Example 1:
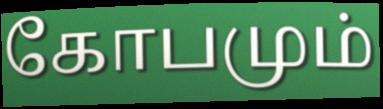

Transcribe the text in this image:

கோபமும்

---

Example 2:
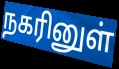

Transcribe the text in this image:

நகரினுள்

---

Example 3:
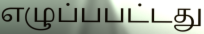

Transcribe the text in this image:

எழுப்பபட்டது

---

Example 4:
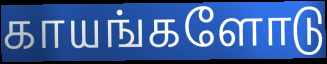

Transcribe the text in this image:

காயங்களோடு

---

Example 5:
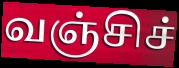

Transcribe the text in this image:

வஞ்சிச்